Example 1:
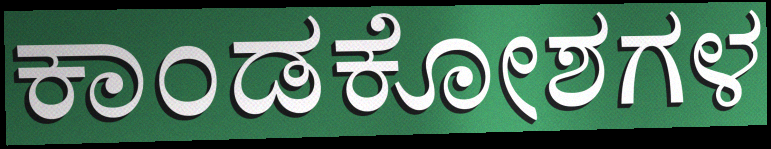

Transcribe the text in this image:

ಕಾಂಡಕೋಶಗಳ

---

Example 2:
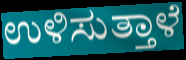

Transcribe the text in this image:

ಉಳಿಸುತ್ತಾಳೆ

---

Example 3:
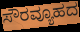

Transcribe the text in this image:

ಸೌರವ್ಯೂಹದ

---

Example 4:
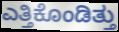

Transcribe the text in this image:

ಎತ್ತಿಕೊಂಡಿತ್ತು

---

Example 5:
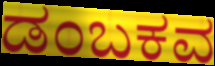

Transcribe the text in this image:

ಡಂಬಕವ